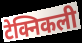
टेक्निकली